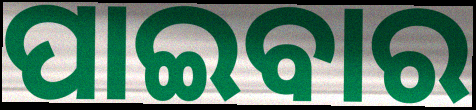
ପାଇବାର